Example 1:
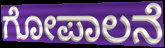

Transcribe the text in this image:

ಗೋಪಾಲನೆ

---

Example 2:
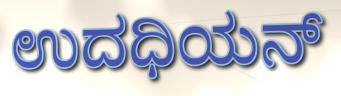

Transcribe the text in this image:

ಉದಧಿಯನ್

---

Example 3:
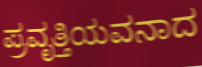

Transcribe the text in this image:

ಪ್ರವೃತ್ತಿಯವನಾದ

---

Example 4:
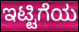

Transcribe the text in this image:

ಇಟ್ಟಿಗೆಯ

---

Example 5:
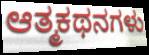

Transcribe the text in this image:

ಆತ್ಮಕಥನಗಳು